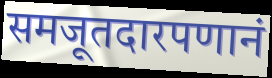
समजूतदारपणानं